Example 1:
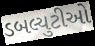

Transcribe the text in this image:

ડબલ્યુટીઓ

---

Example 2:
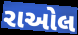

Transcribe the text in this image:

રાઓલ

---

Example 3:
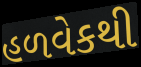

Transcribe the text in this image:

હળવેકથી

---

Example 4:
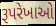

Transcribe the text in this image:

રૂપરેખાઓ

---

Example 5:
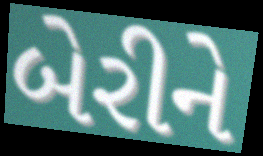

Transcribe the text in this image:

બેરીને